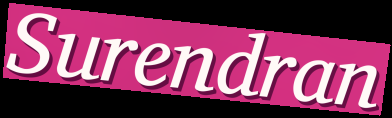
Surendran